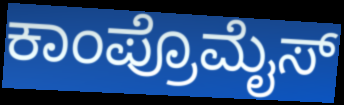
ಕಾಂಪ್ರೊಮೈಸ್